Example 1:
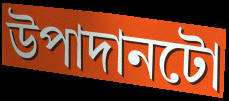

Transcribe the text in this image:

উপাদানটো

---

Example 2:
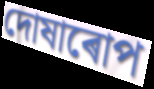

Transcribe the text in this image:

দোষাৰোপ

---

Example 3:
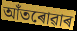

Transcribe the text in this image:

আঁতৰোৱাৰ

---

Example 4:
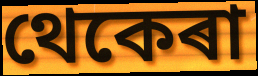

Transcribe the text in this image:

থেকেৰা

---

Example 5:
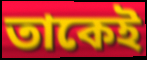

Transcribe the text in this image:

তাকেই